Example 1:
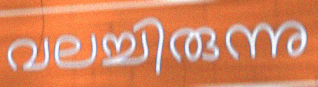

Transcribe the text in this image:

വലച്ചിരുന്നു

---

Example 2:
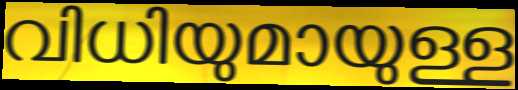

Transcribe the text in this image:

വിധിയുമായുള്ള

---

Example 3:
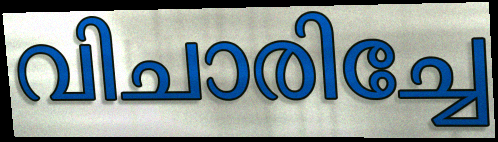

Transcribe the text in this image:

വിചാരിച്ചേ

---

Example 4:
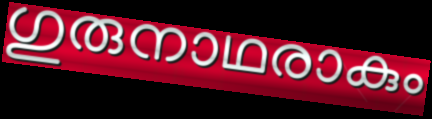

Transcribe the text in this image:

ഗുരുനാഥരാകും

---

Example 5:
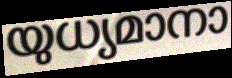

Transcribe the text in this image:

യുധ്യമാനാ